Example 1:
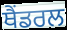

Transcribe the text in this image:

ਥੈਂਡਰਲ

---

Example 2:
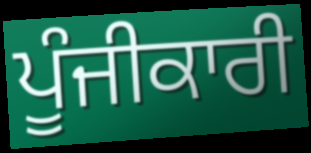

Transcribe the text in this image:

ਪੂੰਜੀਕਾਰੀ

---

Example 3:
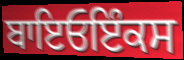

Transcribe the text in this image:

ਬਾਇਓਇੰਕਸ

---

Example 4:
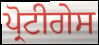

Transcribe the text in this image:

ਪ੍ਰੋਟੀਗੇਸ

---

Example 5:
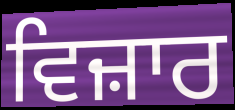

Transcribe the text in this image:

ਵਿਜ਼ਾਰ